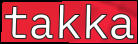
takka